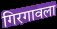
गिरगावला